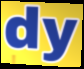
dy